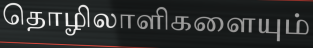
தொழிலாளிகளையும்